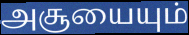
அசூயையும்